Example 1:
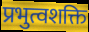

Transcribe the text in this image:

प्रभुत्वशक्ति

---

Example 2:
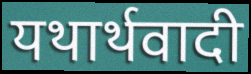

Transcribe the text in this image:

यथार्थवादी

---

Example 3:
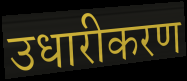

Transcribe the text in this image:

उधारीकरण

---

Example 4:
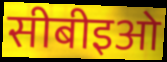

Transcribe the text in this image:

सीबीइओ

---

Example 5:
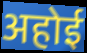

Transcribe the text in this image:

अहोई